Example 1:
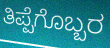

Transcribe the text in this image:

ತಿಪ್ಪೆಗೊಬ್ಬರ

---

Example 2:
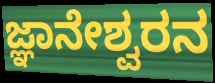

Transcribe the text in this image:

ಜ್ಞಾನೇಶ್ವರನ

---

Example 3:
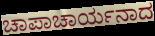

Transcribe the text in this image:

ಚಾಪಾಚಾರ್ಯನಾದ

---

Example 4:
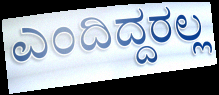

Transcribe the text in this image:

ಎಂದಿದ್ದರಲ್ಲ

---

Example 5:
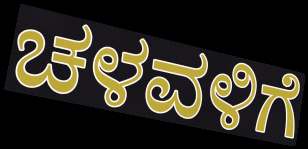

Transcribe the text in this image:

ಚಳವಳಿಗೆ